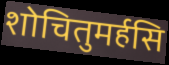
शोचितुमर्हसि